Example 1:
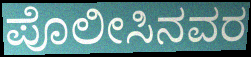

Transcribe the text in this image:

ಪೊಲೀಸಿನವರ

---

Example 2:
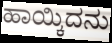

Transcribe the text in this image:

ಹಾಯ್ಕಿದನು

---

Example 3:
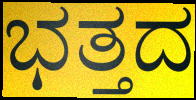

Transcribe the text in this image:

ಭತ್ತದ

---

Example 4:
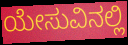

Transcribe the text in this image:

ಯೇಸುವಿನಲ್ಲಿ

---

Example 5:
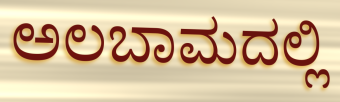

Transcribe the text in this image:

ಅಲಬಾಮದಲ್ಲಿ